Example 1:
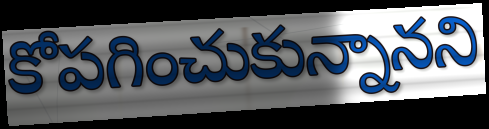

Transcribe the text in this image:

కోపగించుకున్నానని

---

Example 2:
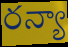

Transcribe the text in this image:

రన్యా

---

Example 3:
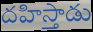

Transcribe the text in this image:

దహిస్తాడు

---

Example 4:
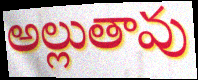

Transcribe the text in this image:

అల్లుతావు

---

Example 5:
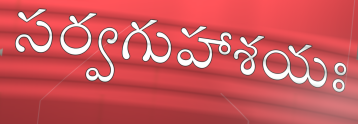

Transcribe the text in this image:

సర్వగుహాశయః